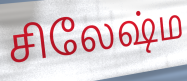
சிலேஷ்ம